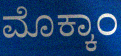
ಮೊಕ್ಕಾಂ